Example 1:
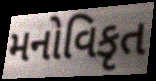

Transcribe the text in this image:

મનોવિકૃત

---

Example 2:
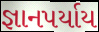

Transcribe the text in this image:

જ્ઞાનપર્યાય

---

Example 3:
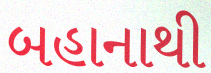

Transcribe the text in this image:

બહાનાથી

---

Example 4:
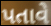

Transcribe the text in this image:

પતાવે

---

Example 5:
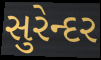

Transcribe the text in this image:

સુરેન્દર